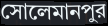
সোলেমানপুর